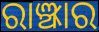
ରାଞ୍ଝାର